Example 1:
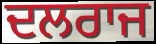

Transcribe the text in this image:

ਦਲਰਾਜ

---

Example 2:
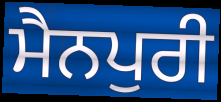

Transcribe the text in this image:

ਮੈਨਪੁਰੀ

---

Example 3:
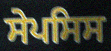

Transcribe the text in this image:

ਸੇਪਸਿਸ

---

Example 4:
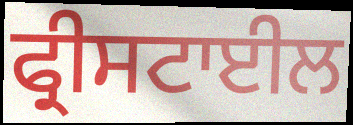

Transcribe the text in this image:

ਫ੍ਰੀਸਟਾਈਲ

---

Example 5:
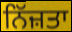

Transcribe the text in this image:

ਨਿੱਜ਼ਤਾ